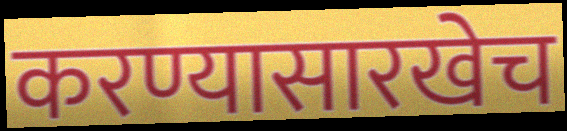
करण्यासारखेच